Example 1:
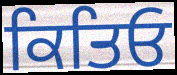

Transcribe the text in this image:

ਕਿਤਿਓ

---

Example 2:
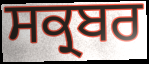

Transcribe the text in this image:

ਸਕ੍ਰਬਰ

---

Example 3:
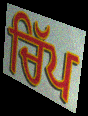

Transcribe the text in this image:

ਚਿੱਪ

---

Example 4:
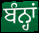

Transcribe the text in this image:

ਬੰਨ੍ਹਾਂ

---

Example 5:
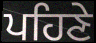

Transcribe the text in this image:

ਪਹਿਣੇ